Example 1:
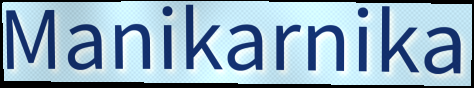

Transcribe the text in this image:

Manikarnika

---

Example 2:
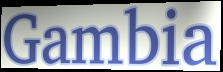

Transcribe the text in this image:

Gambia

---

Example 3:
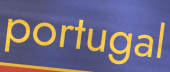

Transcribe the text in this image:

portugal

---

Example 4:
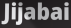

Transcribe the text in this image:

Jijabai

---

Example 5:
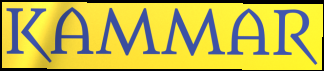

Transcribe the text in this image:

KAMMAR